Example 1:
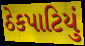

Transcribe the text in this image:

ઠેકપાટિયું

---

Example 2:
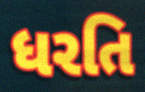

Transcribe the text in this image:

ધરતિ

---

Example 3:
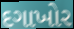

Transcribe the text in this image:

દગાખોર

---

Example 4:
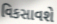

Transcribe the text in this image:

વિકસાવશે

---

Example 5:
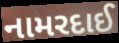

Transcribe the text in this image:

નામરદાઈ